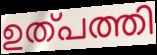
ഉത്പത്തി